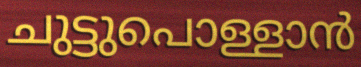
ചുട്ടുപൊള്ളാൻ